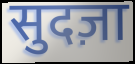
सुदज़ा